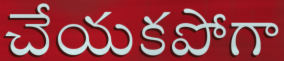
చేయకపోగా